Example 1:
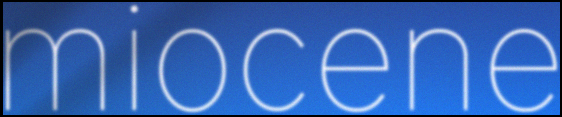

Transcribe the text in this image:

miocene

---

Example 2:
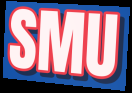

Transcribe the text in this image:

SMU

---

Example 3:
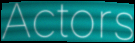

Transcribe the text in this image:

Actors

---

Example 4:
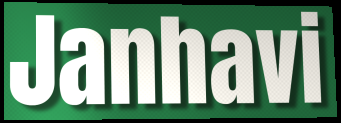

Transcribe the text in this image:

Janhavi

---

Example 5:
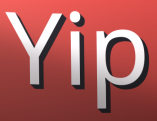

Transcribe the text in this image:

Yip